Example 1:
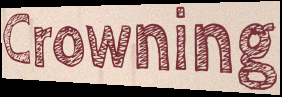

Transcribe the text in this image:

Crowning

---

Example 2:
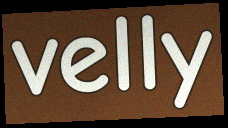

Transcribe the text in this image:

velly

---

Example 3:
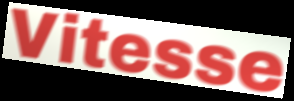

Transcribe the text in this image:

Vitesse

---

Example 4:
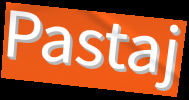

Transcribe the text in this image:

Pastaj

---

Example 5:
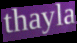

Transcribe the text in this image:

thayla